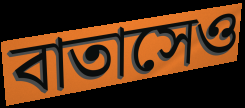
বাতাসেও